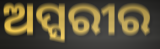
ଅପ୍ସରୀର